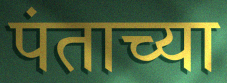
पंताच्या